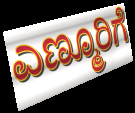
ಎಣ್ಮೂರಿಗೆ